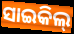
ସାଇକିଲ୍